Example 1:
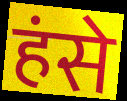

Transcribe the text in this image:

हंसे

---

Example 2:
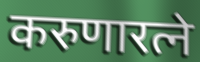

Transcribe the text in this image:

करुणारत्ने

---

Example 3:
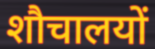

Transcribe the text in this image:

शौचालयों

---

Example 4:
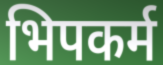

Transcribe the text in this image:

भिपकर्म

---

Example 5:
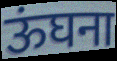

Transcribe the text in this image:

ऊंघना